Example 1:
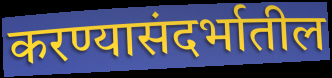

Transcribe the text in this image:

करण्यासंदर्भातील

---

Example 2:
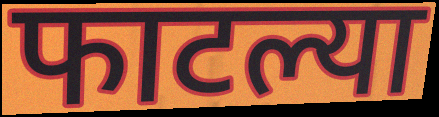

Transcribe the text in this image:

फाटल्या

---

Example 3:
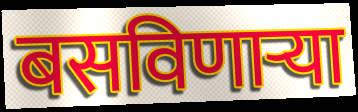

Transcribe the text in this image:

बसविणार्‍या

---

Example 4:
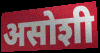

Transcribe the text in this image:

असोशी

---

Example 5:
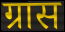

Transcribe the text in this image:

ग्रास